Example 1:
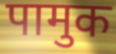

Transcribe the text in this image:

पामुक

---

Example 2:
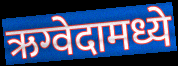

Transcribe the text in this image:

ऋग्वेदामध्ये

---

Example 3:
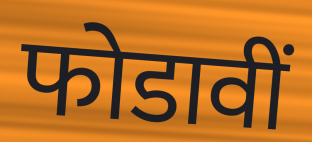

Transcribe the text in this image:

फोडावीं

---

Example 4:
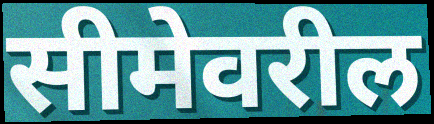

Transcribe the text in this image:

सीमेवरील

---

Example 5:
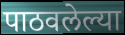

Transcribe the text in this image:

पाठवलेल्या